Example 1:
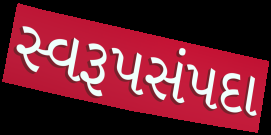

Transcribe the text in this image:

સ્વરૂપસંપદા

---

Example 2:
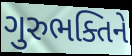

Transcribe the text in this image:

ગુરુભક્તિને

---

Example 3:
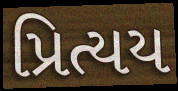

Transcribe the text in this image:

પ્રિત્યય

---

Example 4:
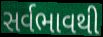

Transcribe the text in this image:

સર્વભાવથી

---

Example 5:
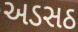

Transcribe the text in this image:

અડસઠ